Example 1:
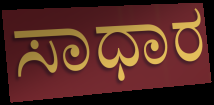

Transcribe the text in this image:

ಸಾಧಾರ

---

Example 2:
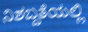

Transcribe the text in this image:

ನಿಶಬ್ದತೆಯಲ್ಲಿ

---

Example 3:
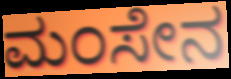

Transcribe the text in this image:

ಮಂಸೇನ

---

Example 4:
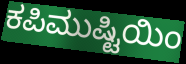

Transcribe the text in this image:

ಕಪಿಮುಷ್ಟಿಯಿಂ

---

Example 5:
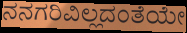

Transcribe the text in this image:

ನನಗರಿವಿಲ್ಲದಂತೆಯೇ